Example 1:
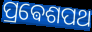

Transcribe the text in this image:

ପ୍ରଵେଶପଥ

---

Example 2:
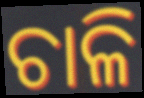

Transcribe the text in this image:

ଚାଳି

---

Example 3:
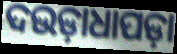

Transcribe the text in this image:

ଦଉଡ଼ାଧାପଡ଼ା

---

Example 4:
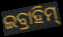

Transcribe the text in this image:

ଇବ୍ରାହିମ୍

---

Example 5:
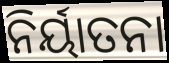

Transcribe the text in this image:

ନିର୍ୟାତନା